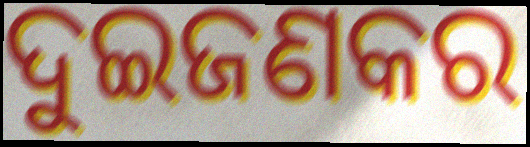
ଦୁଇଜଣକର